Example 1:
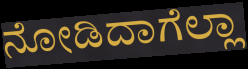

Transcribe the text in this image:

ನೋಡಿದಾಗೆಲ್ಲಾ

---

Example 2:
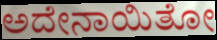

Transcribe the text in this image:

ಅದೇನಾಯಿತೋ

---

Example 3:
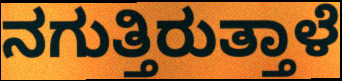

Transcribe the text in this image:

ನಗುತ್ತಿರುತ್ತಾಳೆ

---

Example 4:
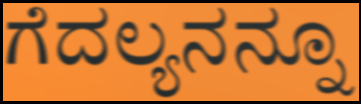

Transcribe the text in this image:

ಗೆದಲ್ಯನನ್ನೂ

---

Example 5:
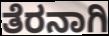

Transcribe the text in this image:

ತೆರನಾಗಿ